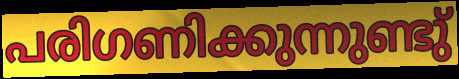
പരിഗണിക്കുന്നുണ്ടു്